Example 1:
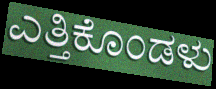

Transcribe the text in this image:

ಎತ್ತಿಕೊಂಡಳು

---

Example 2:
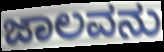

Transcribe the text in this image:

ಜಾಲವನು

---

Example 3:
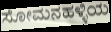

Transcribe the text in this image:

ಸೋಮನಹಳ್ಳಿಯ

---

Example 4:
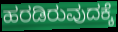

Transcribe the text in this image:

ಹರಡಿರುವುದಕ್ಕೆ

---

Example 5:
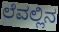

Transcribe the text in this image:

ಲೆವಲ್ಲಿನ